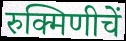
रुक्मिणीचें